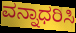
ವನ್ನಾಧರಿಸಿ